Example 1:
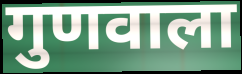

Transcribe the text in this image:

गुणवाला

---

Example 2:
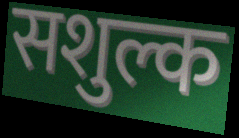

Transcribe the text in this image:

सशुल्क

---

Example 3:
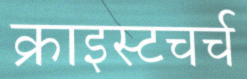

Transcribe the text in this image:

क्राइस्टचर्च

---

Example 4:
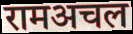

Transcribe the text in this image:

रामअचल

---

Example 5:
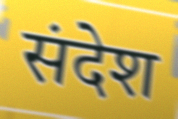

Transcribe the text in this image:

संदेश